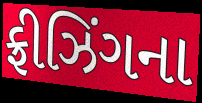
ફ્રીઝિંગના